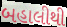
બહાલીથી